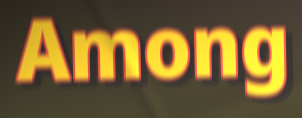
Among